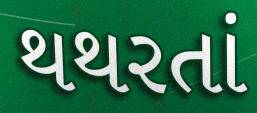
થથરતાં